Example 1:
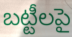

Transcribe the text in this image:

బట్టీలపై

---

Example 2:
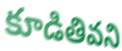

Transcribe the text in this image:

కూడితివని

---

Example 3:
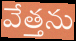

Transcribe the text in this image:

వేత్తను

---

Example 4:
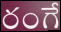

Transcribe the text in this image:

రంగే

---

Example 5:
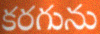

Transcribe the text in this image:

కరగును